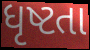
ધૃષ્ટતા